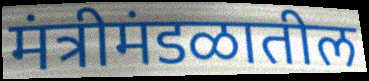
मंत्रीमंडळातील